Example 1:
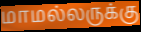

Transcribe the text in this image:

மாமல்லருக்கு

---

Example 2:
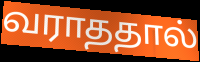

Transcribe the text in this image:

வராததால்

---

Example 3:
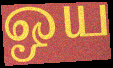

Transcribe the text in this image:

ஓய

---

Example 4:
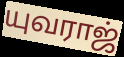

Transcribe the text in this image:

யுவராஜ்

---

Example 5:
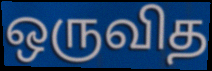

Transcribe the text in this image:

ஒருவித